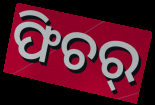
ଫିଚର୍